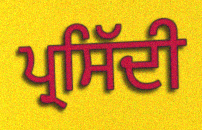
ਪ੍ਰਸਿੱਦੀ